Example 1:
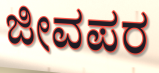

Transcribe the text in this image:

ಜೀವಪರ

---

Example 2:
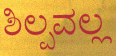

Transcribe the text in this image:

ಶಿಲ್ಪವಲ್ಲ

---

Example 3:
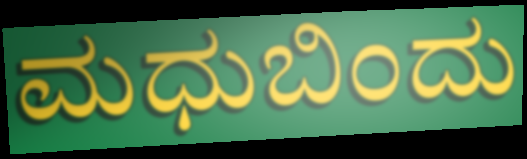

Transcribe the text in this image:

ಮಧುಬಿಂದು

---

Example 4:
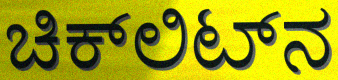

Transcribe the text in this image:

ಚಿಕ್‌ಲಿಟ್‌ನ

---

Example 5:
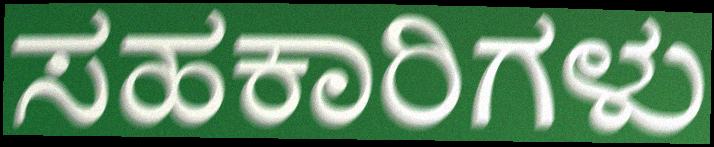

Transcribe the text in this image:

ಸಹಕಾರಿಗಳು